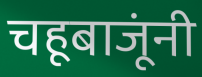
चहूबाजूंनी